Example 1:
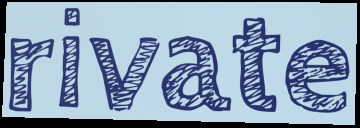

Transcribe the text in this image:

rivate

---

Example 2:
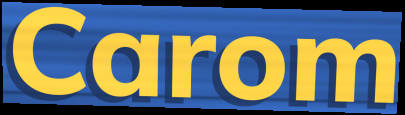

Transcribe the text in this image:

Carom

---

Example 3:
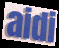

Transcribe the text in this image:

aidi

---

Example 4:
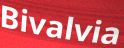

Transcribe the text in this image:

Bivalvia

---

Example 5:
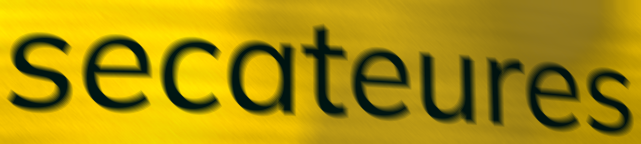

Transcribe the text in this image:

secateures